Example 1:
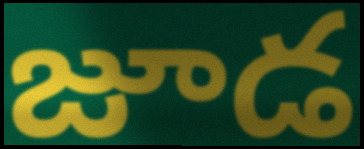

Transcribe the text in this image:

జూడ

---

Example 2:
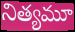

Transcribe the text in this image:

నిత్యమూ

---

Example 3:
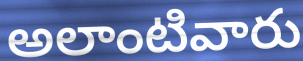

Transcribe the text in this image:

అలాంటివారు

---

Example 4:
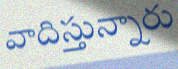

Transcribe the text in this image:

వాదిస్తున్నారు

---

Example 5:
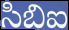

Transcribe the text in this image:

సిబిఐ